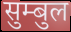
सुम्बुल